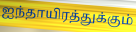
ஐந்தாயிரத்துக்கும்